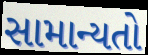
સામાન્યતો